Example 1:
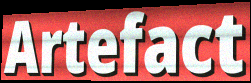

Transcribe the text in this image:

Artefact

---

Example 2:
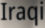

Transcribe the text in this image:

Iraqi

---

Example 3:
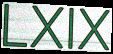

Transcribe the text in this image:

LXIX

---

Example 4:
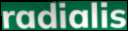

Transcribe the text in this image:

radialis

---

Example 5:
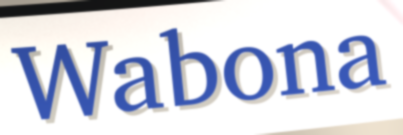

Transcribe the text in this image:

Wabona